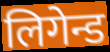
लिगेन्ड